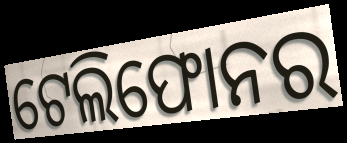
ଟେଲିଫୋନର